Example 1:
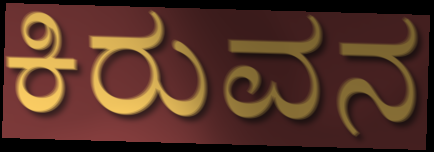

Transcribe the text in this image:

ಕಿರುವನ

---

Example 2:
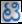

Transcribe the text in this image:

ಟಿ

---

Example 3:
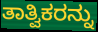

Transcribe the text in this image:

ತಾತ್ವಿಕರನ್ನು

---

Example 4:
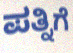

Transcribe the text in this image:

ಪತ್ನಿಗೆ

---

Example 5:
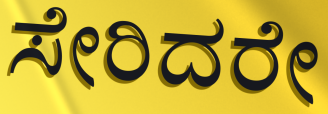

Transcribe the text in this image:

ಸೇರಿದರೇ